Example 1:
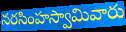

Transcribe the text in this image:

నరసింహస్వామివారు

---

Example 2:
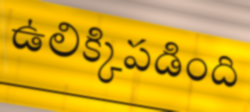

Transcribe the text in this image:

ఉలిక్కిపడింది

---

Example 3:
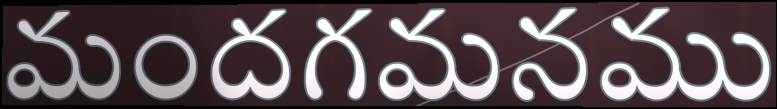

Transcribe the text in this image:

మందగమనము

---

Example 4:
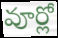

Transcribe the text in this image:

వూర్లో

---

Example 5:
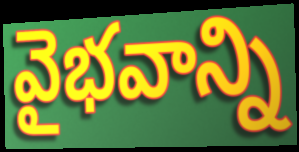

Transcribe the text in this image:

వైభవాన్ని